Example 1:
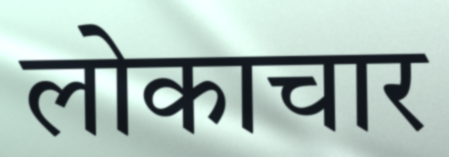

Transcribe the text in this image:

लोकाचार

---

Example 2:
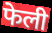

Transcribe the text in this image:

फेली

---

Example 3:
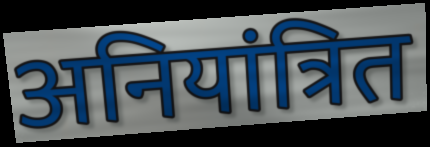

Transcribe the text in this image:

अनियांत्रित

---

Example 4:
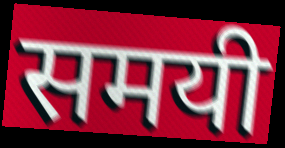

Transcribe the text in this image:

समयी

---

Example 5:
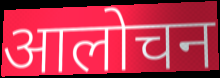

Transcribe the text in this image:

आलोचन